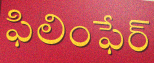
ఫిలింఫేర్